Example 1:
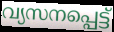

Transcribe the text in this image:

വ്യസനപ്പെട്ട്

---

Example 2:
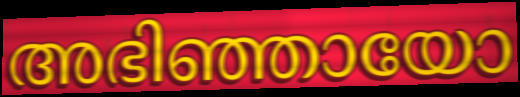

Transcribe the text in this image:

അഭിഞ്ഞായോ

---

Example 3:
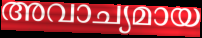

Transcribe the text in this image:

അവാച്യമായ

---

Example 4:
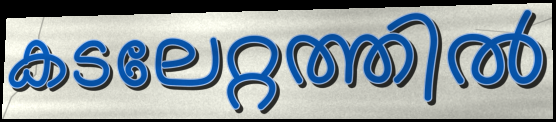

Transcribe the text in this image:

കടലേറ്റത്തിൽ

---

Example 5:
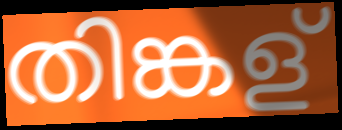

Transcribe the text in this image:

തിങ്കള്